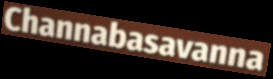
Channabasavanna